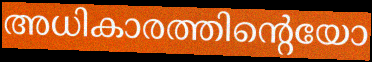
അധികാരത്തിന്റെയോ